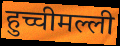
हुच्चीमल्ली